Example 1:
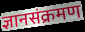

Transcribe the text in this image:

ज्ञानसंक्रमण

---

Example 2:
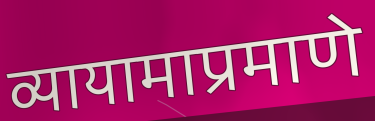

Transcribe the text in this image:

व्यायामाप्रमाणे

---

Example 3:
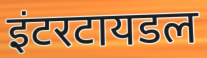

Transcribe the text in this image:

इंटरटायडल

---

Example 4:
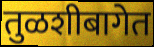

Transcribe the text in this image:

तुळशीबागेत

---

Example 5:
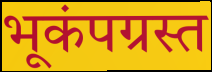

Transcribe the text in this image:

भूकंपग्रस्त